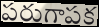
పరుగాపక